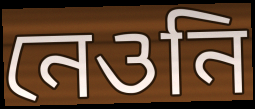
নেওনি